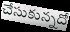
చేసుకున్నదో